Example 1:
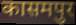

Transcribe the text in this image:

कासमपुर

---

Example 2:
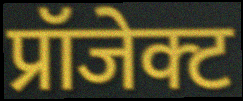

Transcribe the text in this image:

प्रॉजेक्‍ट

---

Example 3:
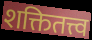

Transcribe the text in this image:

शक्तितत्त्व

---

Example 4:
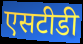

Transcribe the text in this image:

एसटीडी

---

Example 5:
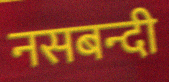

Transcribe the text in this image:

नसबन्दी